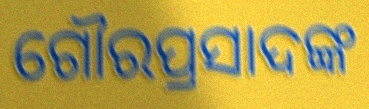
ଗୌରପ୍ରସାଦଙ୍କ